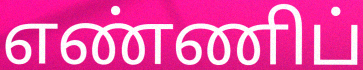
எண்ணிப்